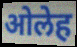
ओलेह